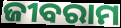
ଜୀବରାମ